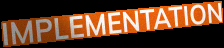
IMPLEMENTATION